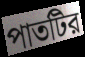
পাতটির